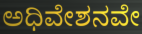
ಅಧಿವೇಶನವೇ